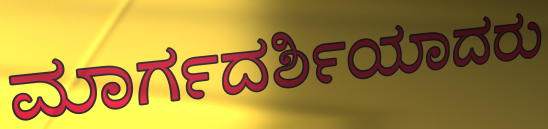
ಮಾರ್ಗದರ್ಶಿಯಾದರು